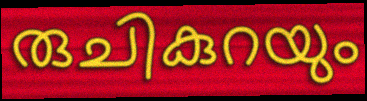
രുചികുറയും